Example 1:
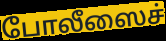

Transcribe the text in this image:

போலீஸைச்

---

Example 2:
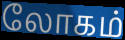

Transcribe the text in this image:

லோகம்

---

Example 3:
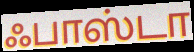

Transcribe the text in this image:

ஃபாஸ்டா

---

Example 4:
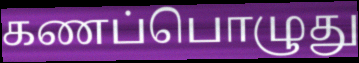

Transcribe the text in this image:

கணப்பொழுது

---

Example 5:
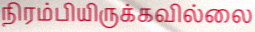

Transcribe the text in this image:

நிரம்பியிருக்கவில்லை